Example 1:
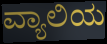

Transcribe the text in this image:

ವ್ಯಾಲಿಯ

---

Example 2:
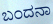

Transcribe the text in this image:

ಬಂದನಾ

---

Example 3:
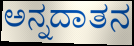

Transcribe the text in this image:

ಅನ್ನದಾತನ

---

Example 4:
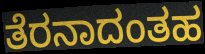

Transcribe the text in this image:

ತೆರನಾದಂತಹ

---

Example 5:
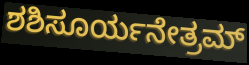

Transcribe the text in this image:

ಶಶಿಸೂರ್ಯನೇತ್ರಮ್